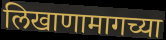
लिखाणामागच्या